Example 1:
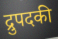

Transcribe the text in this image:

द्रुपदकी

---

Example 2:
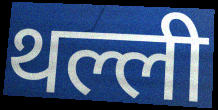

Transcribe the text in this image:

थल्ली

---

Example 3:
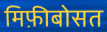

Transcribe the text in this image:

मिफ़ीबोसत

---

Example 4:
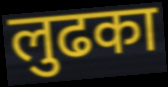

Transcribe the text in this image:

लुढका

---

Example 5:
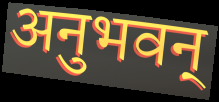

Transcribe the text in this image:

अनुभवन्